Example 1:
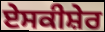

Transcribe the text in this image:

ਏਸਕੀਸ਼ੇਰ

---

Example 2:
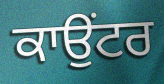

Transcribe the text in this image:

ਕਾਉਂਟਰ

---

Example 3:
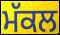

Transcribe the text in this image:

ਮੱਕਲ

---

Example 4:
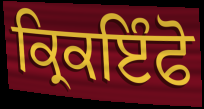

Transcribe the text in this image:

ਕ੍ਰਿਕਇੰਫੋ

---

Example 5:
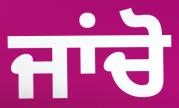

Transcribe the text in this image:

ਜਾਂਚੋ